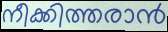
നീക്കിത്തരാൻ